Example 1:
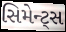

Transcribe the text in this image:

સિમેન્ટ્સ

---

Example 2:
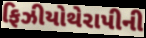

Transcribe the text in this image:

ફિઝીયોથેરાપીની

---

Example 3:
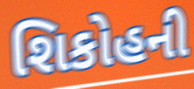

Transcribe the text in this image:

શિકોહની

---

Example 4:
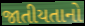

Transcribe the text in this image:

જાતીયતાનો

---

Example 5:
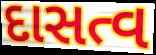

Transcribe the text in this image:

દાસત્વ